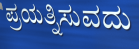
ಪ್ರಯತ್ನಿಸುವದು